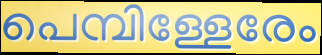
പെമ്പിള്ളേരേം